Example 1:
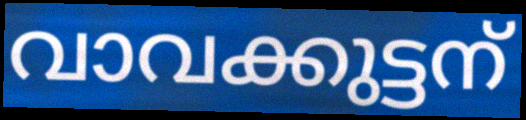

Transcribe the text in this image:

വാവക്കുട്ടന്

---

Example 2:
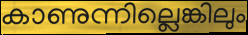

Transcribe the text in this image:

കാണുന്നില്ലെങ്കിലും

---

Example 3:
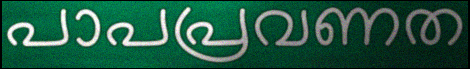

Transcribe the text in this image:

പാപപ്രവണത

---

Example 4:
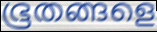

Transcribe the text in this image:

ഭൂതങ്ങളെ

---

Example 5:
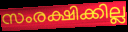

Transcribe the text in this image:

സംരക്ഷിക്കില്ല